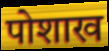
पोशाख